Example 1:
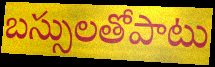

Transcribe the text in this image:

బస్సులతోపాటు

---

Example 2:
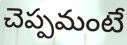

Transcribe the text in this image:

చెప్పమంటే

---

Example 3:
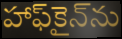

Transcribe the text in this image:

హాఫ్‌కైన్‌ను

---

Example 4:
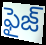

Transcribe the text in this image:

ఫైజ్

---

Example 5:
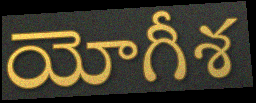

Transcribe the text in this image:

యోగీశ